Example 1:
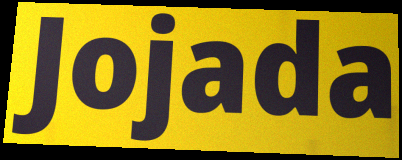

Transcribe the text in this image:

Jojada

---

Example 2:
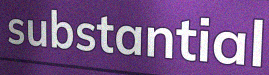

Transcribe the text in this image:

substantial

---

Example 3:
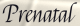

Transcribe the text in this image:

Prenatal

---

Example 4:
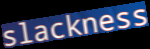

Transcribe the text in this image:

slackness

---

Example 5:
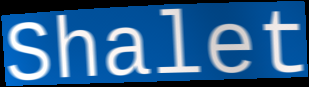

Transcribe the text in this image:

Shalet